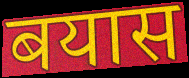
बयास